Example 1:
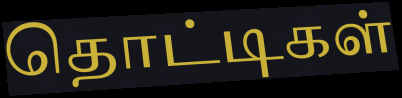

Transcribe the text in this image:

தொட்டிகள்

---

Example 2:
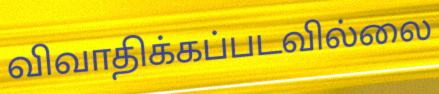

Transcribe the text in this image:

விவாதிக்கப்படவில்லை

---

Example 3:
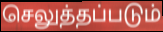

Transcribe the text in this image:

செலுத்தப்படும்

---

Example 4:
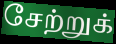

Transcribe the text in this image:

சேற்றுக்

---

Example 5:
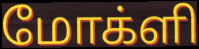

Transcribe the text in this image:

மோக்ளி